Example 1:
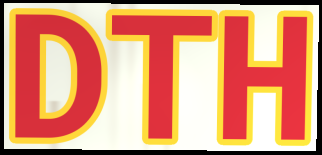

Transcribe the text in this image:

DTH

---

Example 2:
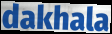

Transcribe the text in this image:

dakhala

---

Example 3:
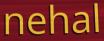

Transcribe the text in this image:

nehal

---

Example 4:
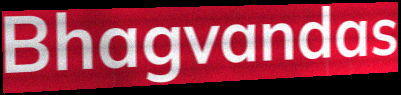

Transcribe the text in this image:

Bhagvandas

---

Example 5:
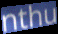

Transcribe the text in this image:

nthu